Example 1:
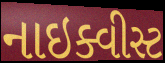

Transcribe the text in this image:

નાઇક્વીસ્ટ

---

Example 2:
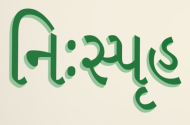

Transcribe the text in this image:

નિઃસ્પૃહ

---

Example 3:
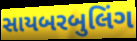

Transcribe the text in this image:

સાયબરબુલિંગ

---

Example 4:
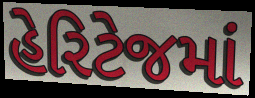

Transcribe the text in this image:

હેરિટેજમાં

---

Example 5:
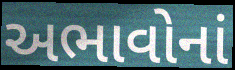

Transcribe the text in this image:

અભાવોનાં